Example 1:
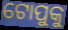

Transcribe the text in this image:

ଟୋପୁକୁ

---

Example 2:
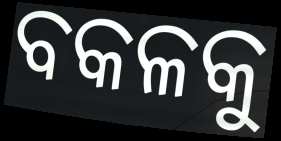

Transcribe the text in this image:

ବକଳକୁ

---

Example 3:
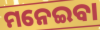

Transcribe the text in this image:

ମନେଇବା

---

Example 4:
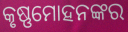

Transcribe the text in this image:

କୃଷ୍ଣମୋହନଙ୍କର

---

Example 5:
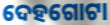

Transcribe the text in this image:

ଦେହଗୋଟା